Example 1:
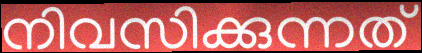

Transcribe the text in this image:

നിവസിക്കുന്നത്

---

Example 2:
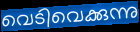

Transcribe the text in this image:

വെടിവെക്കുന്നു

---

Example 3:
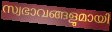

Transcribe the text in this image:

സ്വഭാവങ്ങളുമായി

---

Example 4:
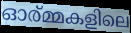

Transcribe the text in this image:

ഓര്മ്മകളിലെ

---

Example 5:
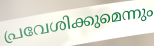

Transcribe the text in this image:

പ്രവേശിക്കുമെന്നും